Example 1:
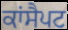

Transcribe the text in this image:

ਕਾਂਸੈਪਟ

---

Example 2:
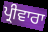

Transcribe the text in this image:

ਪ੍ਰੀਵਾਰਾ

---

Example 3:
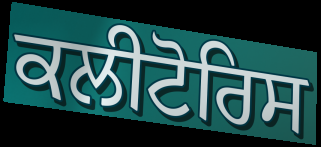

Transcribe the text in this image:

ਕਲੀਟੋਰਿਸ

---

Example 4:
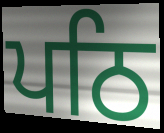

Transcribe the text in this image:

ਪਠਿ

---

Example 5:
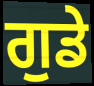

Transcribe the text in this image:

ਗੁਡੇ